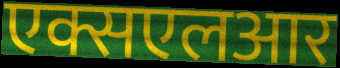
एक्सएलआर